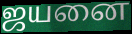
ஜயனை